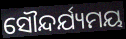
ସୌନ୍ଦର୍ଯ୍ୟମୟ